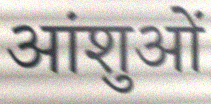
आंशुओं